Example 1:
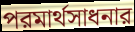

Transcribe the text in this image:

পরমার্থসাধনার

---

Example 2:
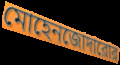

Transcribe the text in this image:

মোহেনজোদারোর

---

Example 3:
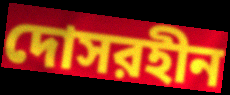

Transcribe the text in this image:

দোসরহীন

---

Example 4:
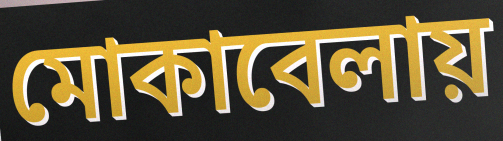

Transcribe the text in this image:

মোকাবেলায়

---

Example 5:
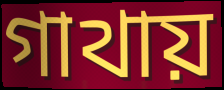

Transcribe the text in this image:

গাথায়